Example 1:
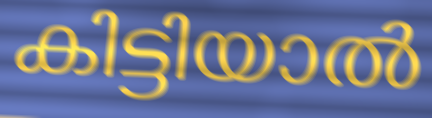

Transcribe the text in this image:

കിട്ടിയാൽ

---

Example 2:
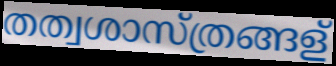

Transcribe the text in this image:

തത്വശാസ്ത്രങ്ങള്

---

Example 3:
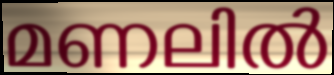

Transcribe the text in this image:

മണലിൽ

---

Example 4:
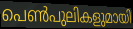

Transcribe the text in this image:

പെൺപുലികളുമായി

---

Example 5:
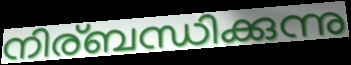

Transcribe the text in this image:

നിര്ബന്ധിക്കുന്നു